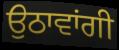
ਉਠਾਵਾਂਗੀ